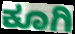
ಕೂಗಿ